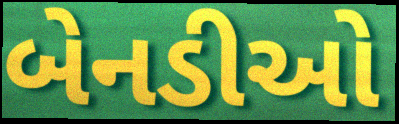
બેનડીઓ